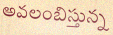
అవలంబిస్తున్న